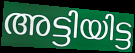
അട്ടിയിട്ട